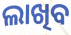
ଲାଖିବ